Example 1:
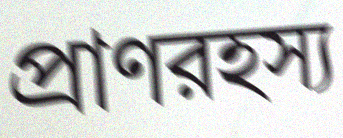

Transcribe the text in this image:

প্রাণরহস্য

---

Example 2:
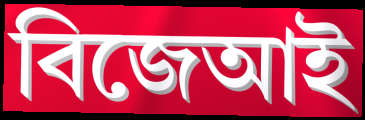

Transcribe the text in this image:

বিজেআই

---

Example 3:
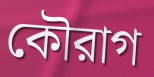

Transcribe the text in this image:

কৌরাগ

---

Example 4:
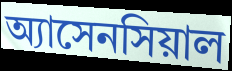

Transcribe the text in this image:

অ্যাসেনসিয়াল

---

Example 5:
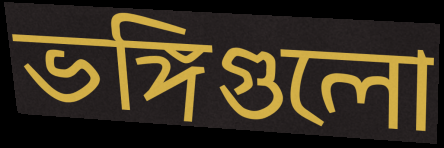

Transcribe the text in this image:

ভঙ্গিগুলো